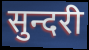
सुन्दरी